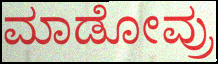
ಮಾಡೋವ್ರು